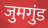
जुमगुंड